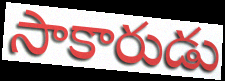
సాకారుడు